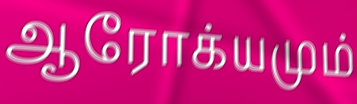
ஆரோக்யமும்